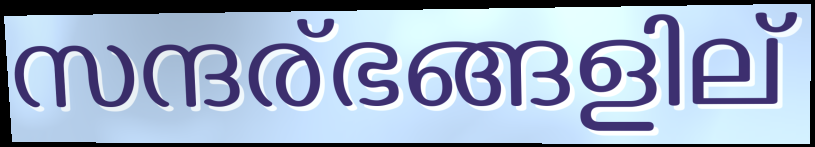
സന്ദര്ഭങ്ങളില്